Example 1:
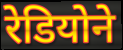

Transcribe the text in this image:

रेडियोने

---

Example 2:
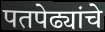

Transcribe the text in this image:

पतपेढ्यांचे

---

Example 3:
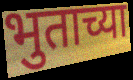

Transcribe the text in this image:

भुताच्या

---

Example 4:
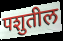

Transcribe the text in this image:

पशुतील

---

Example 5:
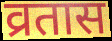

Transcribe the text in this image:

व्रतास